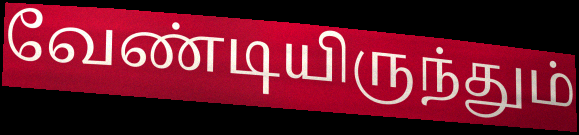
வேண்டியிருந்தும்